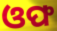
ଓଫ